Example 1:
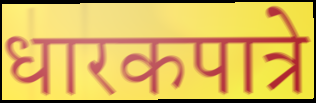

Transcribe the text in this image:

धारकपात्रे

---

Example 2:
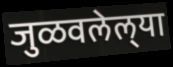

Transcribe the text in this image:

जुळवलेल्या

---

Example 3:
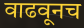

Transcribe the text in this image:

वाढवूनच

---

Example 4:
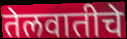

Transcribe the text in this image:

तेलवातीचे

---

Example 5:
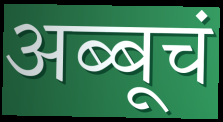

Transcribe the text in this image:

अब्बूचं